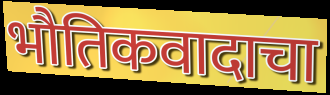
भौतिकवादाचा